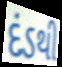
દંડથી